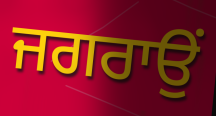
ਜਗਰਾਉਂ